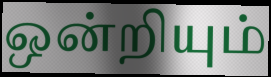
ஒன்றியும்